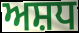
ਅਸ਼ਧ